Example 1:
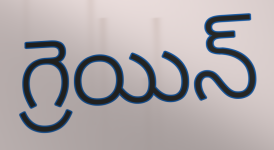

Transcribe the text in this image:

గ్రెయిన్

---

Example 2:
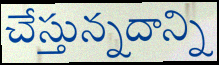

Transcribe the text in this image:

చేస్తున్నదాన్ని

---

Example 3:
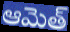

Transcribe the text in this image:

ఆమెత్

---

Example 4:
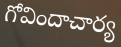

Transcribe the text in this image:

గోవిందాచార్య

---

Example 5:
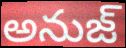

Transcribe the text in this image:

అనుజ్